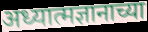
अध्यात्मज्ञानाच्या